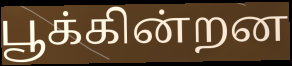
பூக்கின்றன